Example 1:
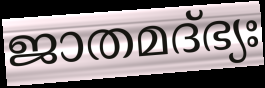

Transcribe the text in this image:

ജാതമദ്ഭ്യഃ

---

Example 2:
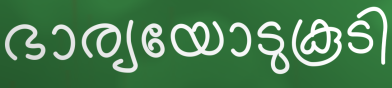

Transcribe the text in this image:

ഭാര്യയോടുകൂടി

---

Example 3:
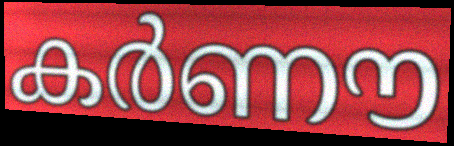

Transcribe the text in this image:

കർണൗ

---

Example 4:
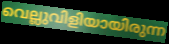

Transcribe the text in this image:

വെല്ലുവിളിയായിരുന്ന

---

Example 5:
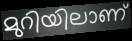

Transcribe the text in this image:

മുറിയിലാണ്